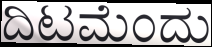
ದಿಟಮೆಂದು